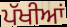
ਪੱਖੀਆਂ